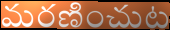
మరణించుట